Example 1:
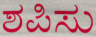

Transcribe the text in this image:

ಶಪಿಸು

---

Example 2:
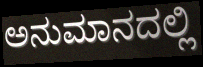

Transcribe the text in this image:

ಅನುಮಾನದಲ್ಲಿ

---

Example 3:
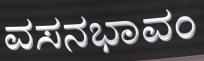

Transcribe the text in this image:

ವಸನಭಾವಂ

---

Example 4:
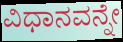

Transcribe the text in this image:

ವಿಧಾನವನ್ನೇ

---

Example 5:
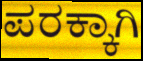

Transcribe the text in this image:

ಪರಕ್ಕಾಗಿ